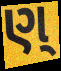
ણ્